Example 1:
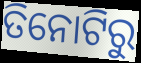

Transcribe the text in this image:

ତିନୋଟିରୁ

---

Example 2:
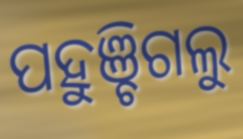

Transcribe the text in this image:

ପହୁଞ୍ଚିଗଲୁ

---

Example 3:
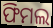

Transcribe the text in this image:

ଫିମଲ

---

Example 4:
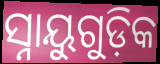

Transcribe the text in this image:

ସ୍ନାୟୁଗୁଡ଼ିକ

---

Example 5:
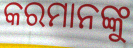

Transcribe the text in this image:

କରମାନଙ୍କୁ